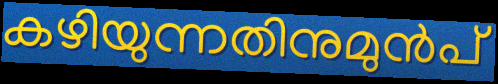
കഴിയുന്നതിനുമുൻപ്